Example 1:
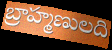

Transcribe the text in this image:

బ్రాహ్మణులది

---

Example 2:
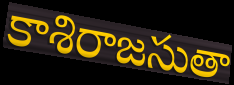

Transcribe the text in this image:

కాశిరాజసుతా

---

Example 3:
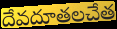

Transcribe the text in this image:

దేవదూతలచేత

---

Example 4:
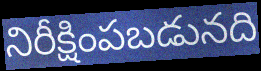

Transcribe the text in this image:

నిరీక్షింపబడునది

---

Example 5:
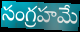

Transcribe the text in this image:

సంగ్రహమే